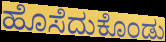
ಹೊಸೆದುಕೊಂಡು